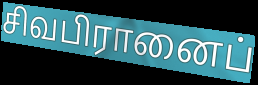
சிவபிரானைப்